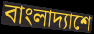
বাংলাদ্যাশে